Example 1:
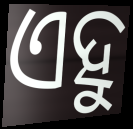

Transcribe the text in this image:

ଏହୁ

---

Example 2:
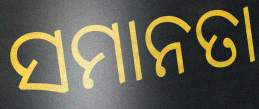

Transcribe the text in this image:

ସମାନତା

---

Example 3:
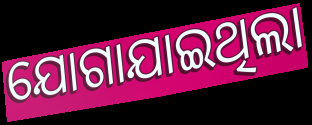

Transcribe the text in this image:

ଯୋଗାଯାଇଥିଲା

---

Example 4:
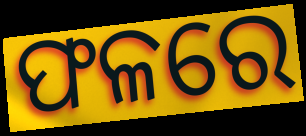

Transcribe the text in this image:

ଫଳରେ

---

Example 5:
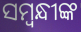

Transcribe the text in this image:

ସମ୍ବନ୍ଧୀଙ୍କ